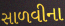
સાળવીના